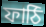
ফাঠি